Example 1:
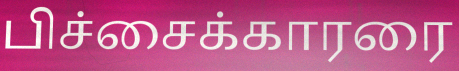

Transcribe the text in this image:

பிச்சைக்காரரை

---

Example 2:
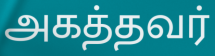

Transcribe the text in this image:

அகத்தவர்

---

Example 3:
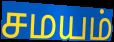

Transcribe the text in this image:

சமயம்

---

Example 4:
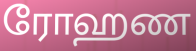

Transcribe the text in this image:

ரோஹண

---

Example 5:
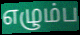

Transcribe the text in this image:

எழும்ப